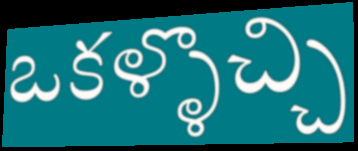
ఒకళ్ళొచ్చి